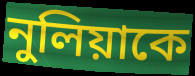
নুলিয়াকে